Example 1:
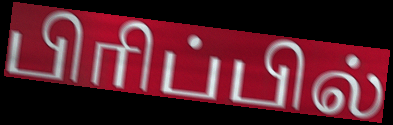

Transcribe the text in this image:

பிரிப்பில்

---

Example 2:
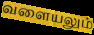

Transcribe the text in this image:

வளையலும்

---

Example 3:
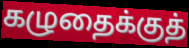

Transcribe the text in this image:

கழுதைக்குத்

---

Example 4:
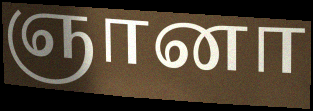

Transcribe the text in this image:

ஞானா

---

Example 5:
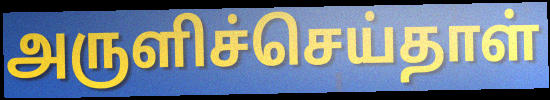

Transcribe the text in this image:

அருளிச்செய்தாள்